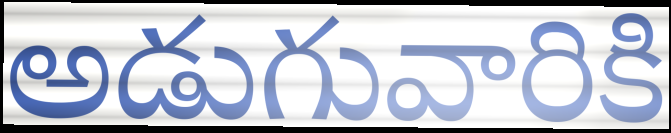
అడుగువారికి